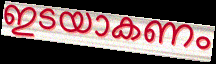
ഇടയാകണം